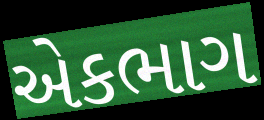
એકભાગ